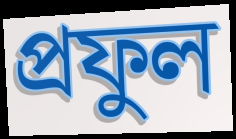
প্রফুল